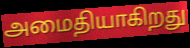
அமைதியாகிறது